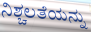
ನಿಶ್ಚಲತೆಯನ್ನು